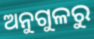
ଅନୁଗୁଳରୁ